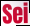
Sei